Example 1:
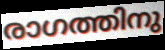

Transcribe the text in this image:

രാഗത്തിനു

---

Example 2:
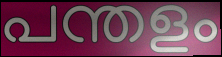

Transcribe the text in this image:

പന്തളം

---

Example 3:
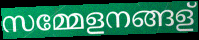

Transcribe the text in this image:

സമ്മേളനങ്ങള്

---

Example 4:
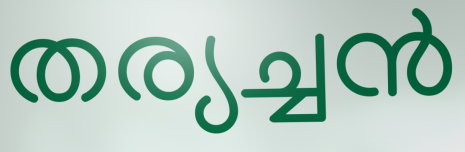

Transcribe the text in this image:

തര്യച്ചൻ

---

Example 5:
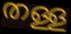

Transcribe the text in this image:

തള്ള